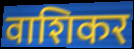
वाशिकर